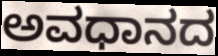
ಅವಧಾನದ